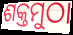
ଶକ୍ତମୁଠା